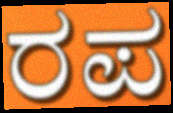
ರಪ